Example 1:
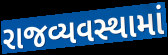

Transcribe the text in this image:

રાજવ્યવસ્થામાં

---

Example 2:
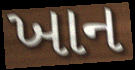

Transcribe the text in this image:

ખાન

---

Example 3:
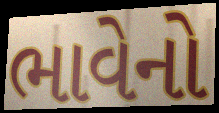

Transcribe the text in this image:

ભાવેનો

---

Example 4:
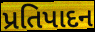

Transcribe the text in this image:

પ્રતિપાદન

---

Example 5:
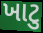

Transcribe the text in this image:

ખાટુ